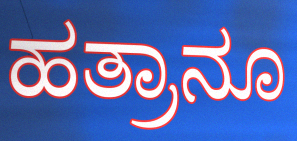
ಹತ್ರಾನೂ